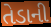
તેડાની